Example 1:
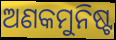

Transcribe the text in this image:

ଅଣକମୁନିଷ୍ଟ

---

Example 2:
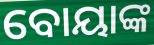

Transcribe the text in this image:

ବୋୟାଙ୍କ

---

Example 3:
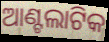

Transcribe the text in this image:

ଆଣ୍ଟଲାଟିକ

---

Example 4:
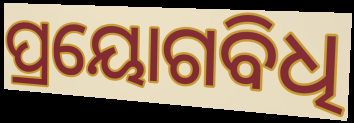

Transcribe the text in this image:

ପ୍ରୟୋଗବିଧି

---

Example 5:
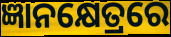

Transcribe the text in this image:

ଜ୍ଞାନକ୍ଷେତ୍ରରେ